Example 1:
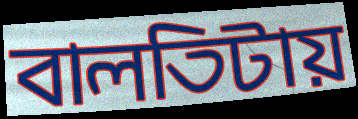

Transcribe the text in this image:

বালতিটায়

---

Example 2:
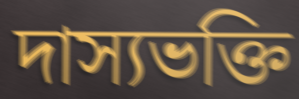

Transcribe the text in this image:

দাস্যভক্তি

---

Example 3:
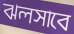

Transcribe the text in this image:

ঝলসাবে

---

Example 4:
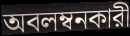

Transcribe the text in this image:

অবলম্বনকারী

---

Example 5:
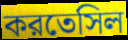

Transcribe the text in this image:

করতেসিল